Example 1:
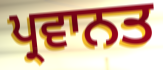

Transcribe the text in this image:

ਪ੍ਰਵਾਨਤ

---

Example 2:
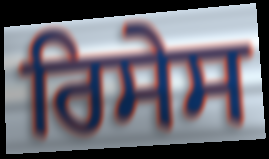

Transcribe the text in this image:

ਰਿਸੇਸ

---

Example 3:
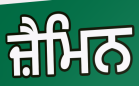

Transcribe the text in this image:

ਜ਼ੈਮਿਨ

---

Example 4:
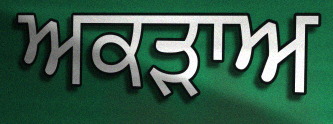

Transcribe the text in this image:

ਅਕੜਾਅ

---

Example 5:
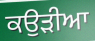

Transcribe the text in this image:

ਕਉੜੀਆ